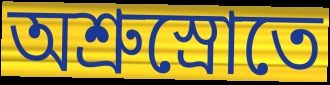
অশ্রুস্রোতে